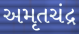
અમૃતચંદ્ર